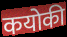
कयोकी